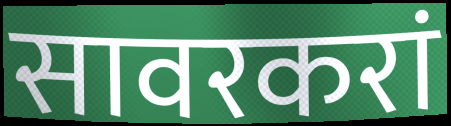
सावरकरां